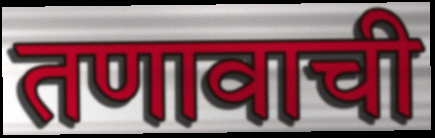
तणावाची